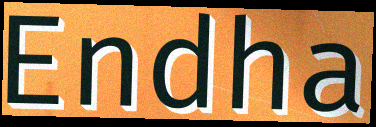
Endha